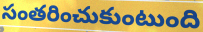
సంతరించుకుంటుంది